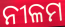
ନୀଳମ